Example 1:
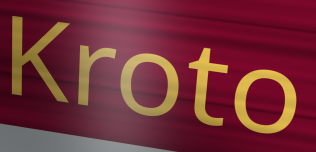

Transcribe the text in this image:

Kroto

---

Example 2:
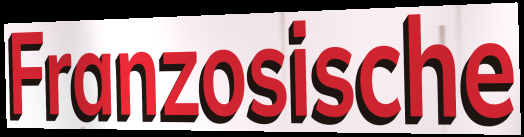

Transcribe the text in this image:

Franzosische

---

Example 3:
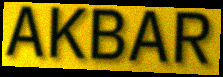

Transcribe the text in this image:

AKBAR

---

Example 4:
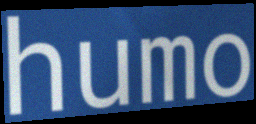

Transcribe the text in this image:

humo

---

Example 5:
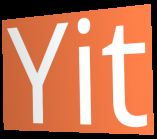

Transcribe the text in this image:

Yit